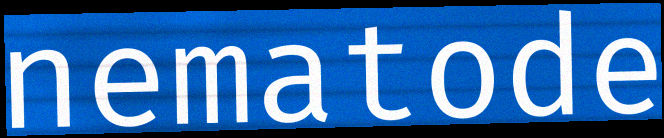
nematode